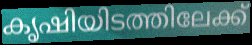
കൃഷിയിടത്തിലേക്ക്